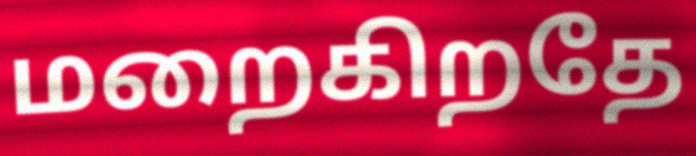
மறைகிறதே